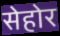
सेहोर